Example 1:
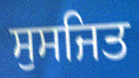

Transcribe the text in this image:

ਸੁਸਜਿਤ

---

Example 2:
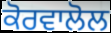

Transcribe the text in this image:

ਕੋਰਵਾਲੋਲ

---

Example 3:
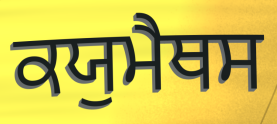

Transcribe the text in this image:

ਕਯੁਮੈਥਸ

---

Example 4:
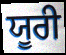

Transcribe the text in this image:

ਯੂਰੀ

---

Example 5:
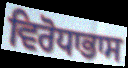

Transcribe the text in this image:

ਵਿਰੋਧਾਭਾਸ